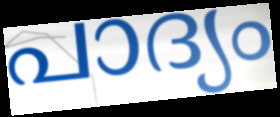
പാദ്യം